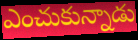
ఎంచుకున్నాడు